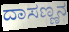
ದಾಸಣ್ಣನ